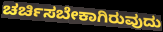
ಚರ್ಚಿಸಬೇಕಾಗಿರುವುದು